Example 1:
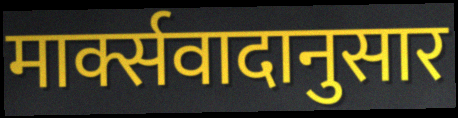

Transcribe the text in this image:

मार्क्सवादानुसार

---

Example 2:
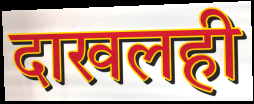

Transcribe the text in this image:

दाखलही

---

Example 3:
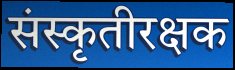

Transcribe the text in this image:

संस्कृतीरक्षक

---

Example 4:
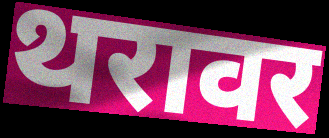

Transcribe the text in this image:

थरावर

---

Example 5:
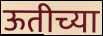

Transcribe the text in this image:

ऊतीच्या